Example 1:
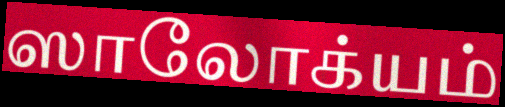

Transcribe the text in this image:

ஸாலோக்யம்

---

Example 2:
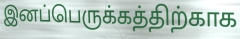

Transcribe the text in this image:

இனப்பெருக்கத்திற்காக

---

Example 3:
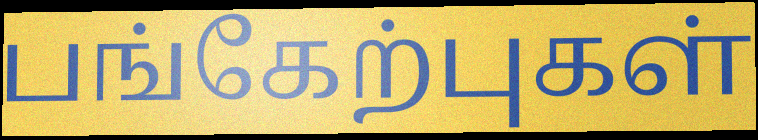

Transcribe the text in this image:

பங்கேற்புகள்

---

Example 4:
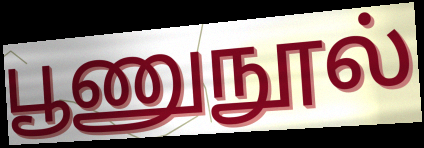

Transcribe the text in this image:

பூணுநூல்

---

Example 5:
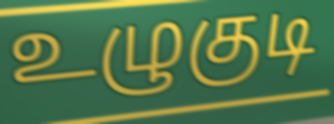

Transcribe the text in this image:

உழுகுடி